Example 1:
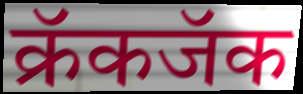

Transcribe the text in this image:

क्रॅकजॅक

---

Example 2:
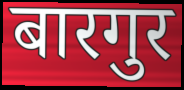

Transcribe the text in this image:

बारगुर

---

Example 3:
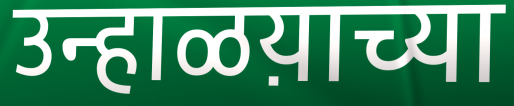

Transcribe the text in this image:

उन्हाळय़ाच्या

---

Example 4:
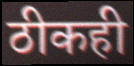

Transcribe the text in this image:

ठीकही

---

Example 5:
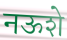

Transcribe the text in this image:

नऊशे